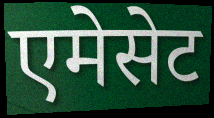
एमेसेट